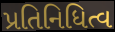
પ્રતિનિધિત્વ